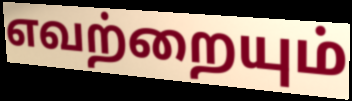
எவற்றையும்